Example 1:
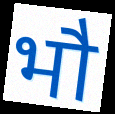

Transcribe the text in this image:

भौ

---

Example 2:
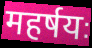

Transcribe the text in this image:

महर्षयः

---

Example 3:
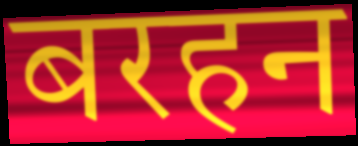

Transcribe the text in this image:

बरहन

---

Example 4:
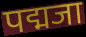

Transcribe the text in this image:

पद्मजा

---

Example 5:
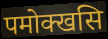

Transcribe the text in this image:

पमोक्खसि